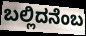
ಬಲ್ಲಿದನೆಂಬ